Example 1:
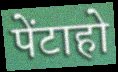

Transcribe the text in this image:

पेंटाहो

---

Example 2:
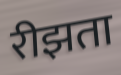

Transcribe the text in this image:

रीझता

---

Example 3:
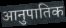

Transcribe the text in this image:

आनुपातिक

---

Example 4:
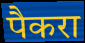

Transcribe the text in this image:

पैकरा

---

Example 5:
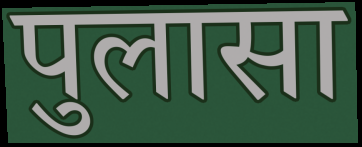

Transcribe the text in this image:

पुलासा